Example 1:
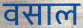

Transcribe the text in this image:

वसाल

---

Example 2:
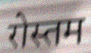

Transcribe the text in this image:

रोस्तम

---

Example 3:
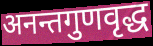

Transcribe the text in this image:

अनन्तगुणवृद्ध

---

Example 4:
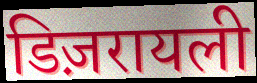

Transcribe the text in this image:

डिज़रायली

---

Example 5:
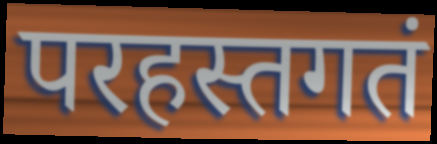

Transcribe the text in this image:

परहस्तगतं